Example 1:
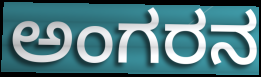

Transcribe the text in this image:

ಅಂಗರನ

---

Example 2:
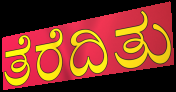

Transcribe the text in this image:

ತೆರೆದಿತು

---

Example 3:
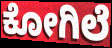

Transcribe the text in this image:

ಕೋಗಿಲೆ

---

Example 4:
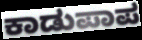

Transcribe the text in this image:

ಕಾಡುಪಾಪ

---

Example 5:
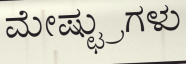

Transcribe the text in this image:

ಮೇಷ್ಟ್ರುಗಳು